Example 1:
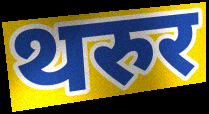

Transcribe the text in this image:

थरुर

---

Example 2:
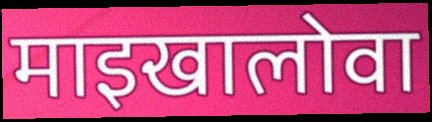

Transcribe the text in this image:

माइखालोवा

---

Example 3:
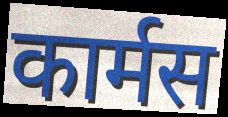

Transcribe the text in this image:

कार्मस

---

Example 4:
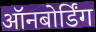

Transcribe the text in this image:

ऑनबोर्डिंग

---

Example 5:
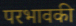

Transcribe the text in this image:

परभावकी